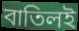
বাতিলই